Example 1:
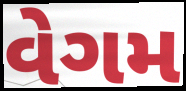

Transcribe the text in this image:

વેગમ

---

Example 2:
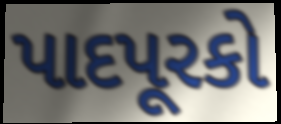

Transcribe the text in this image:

પાદપૂરકો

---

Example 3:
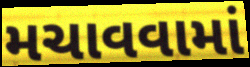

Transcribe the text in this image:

મચાવવામાં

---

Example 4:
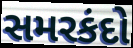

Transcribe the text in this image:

સમરકંદો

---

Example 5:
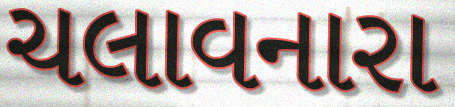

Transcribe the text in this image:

ચલાવનારા